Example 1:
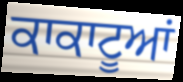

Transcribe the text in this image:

ਕਾਕਾਟੂਆਂ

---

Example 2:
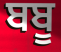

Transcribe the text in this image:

ਬਬੂ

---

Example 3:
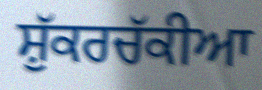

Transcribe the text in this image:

ਸ਼ੁੱਕਰਚੱਕੀਆ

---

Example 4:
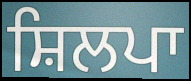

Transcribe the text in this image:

ਸ਼ਿਲਪਾ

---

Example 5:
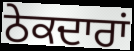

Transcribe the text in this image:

ਠੇਕਦਾਰਾਂ